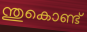
ന്തുകൊണ്ട്